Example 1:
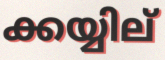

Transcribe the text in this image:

ക്കയ്യില്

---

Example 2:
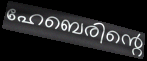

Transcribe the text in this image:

ഹേബെരിന്റെ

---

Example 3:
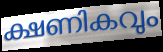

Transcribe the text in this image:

ക്ഷണികവും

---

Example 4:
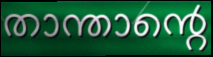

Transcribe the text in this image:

താന്താന്റെ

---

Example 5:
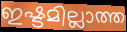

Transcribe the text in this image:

ഇഷ്ടമില്ലാത്ത